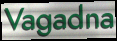
Vagadna